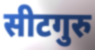
सीटगुरु